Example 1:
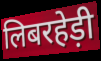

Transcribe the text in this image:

लिबरहेड़ी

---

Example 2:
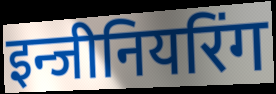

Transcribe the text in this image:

इन्जीनियरिंग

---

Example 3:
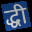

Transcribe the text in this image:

द्धी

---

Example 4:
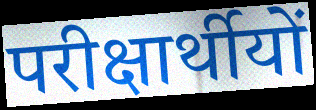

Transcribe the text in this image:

परीक्षार्थीयों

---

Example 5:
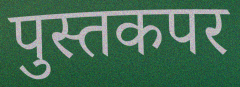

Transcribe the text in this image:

पुस्तकपर